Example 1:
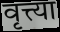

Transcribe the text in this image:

वृत्त्या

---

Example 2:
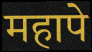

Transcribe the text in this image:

महापे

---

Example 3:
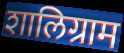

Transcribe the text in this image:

शालिग्राम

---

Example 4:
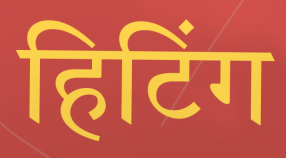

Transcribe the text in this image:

हिटिंग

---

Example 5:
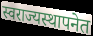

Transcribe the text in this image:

स्वराज्यस्थापनेत